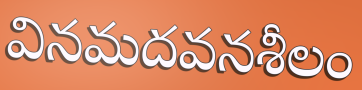
వినమదవనశీలం